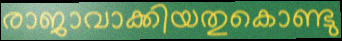
രാജാവാക്കിയതുകൊണ്ടു